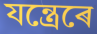
যন্ত্ৰেৰে